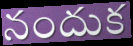
నందుక